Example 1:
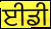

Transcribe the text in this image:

ਈਡੀ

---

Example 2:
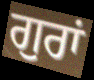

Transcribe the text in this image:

ਗੁਰਾਂ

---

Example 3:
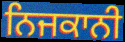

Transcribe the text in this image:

ਨਿਜਕਾਨੀ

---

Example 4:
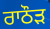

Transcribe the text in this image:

ਰਾਠੌੜ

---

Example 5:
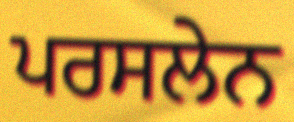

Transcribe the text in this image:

ਪਰਸਲੇਨ